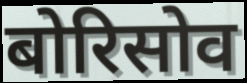
बोरिसोव